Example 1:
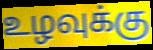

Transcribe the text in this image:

உழவுக்கு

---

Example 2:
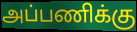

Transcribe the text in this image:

அப்பணிக்கு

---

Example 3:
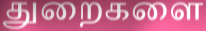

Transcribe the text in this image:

துறைகளை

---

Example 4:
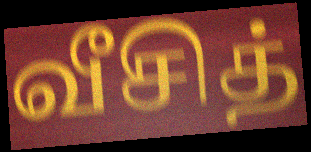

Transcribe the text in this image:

வீசித்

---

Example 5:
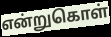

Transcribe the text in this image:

என்றுகொள்